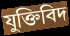
যুক্তিবিদ